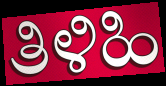
ತಿಳಿಹಿ